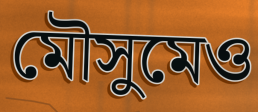
মৌসুমেও